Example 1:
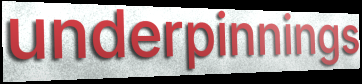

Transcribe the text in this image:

underpinnings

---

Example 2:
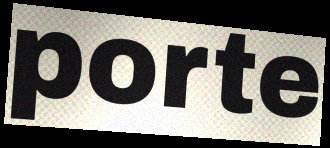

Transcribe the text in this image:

porte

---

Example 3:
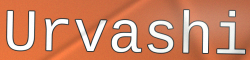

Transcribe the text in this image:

Urvashi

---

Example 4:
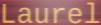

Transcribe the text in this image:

Laurel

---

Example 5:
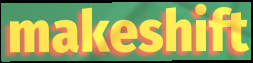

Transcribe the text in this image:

makeshift